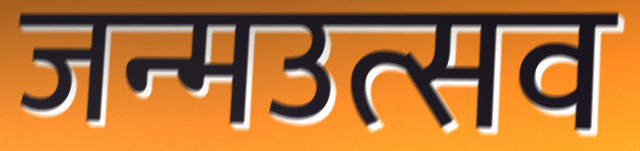
जन्मउत्सव